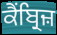
ਕੈਂਬ੍ਰਿਜ਼